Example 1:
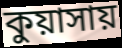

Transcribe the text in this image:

কুয়াসায়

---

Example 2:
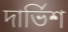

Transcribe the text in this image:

দার্ভিশ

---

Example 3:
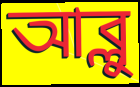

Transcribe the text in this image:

আব্লু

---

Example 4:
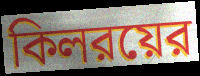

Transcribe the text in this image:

কিলরয়ের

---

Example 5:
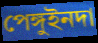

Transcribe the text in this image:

পেঙ্গুইনদা